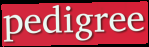
pedigree